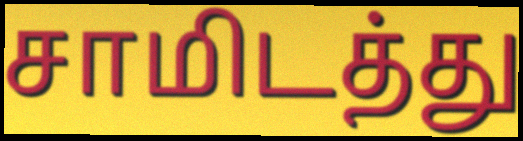
சாமிடத்து